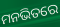
ମନଭିତରେ